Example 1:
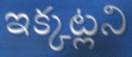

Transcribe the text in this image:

ఇక్కట్లని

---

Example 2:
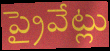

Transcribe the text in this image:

ప్రైవేట్లు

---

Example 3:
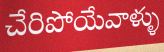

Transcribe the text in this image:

చేరిపోయేవాళ్ళు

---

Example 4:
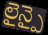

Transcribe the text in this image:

లైన్పై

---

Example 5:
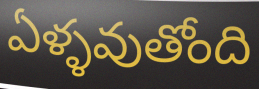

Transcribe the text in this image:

ఏళ్ళవుతోంది